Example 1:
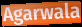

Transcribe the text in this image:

Agarwala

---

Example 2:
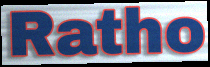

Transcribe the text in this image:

Ratho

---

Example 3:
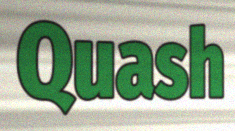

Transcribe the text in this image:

Quash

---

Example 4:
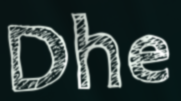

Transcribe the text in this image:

Dhe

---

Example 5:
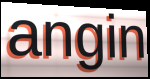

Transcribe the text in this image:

angin